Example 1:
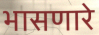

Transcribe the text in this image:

भासणारे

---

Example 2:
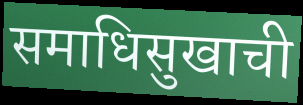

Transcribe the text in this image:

समाधिसुखाची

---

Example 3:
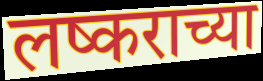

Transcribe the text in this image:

लष्कराच्या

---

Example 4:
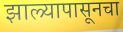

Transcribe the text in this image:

झाल्यापासूनचा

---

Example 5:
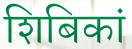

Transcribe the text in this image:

शिबिकां